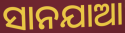
ସାନଯାଆ